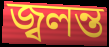
জ্বলন্ত